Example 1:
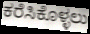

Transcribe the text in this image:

ಕರೆಸಿಕೊಳ್ಳಲು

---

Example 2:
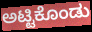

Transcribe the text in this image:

ಅಟ್ಟಿಕೊಂಡು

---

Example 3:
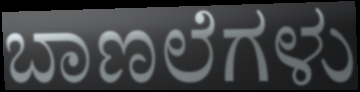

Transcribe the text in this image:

ಬಾಣಲೆಗಳು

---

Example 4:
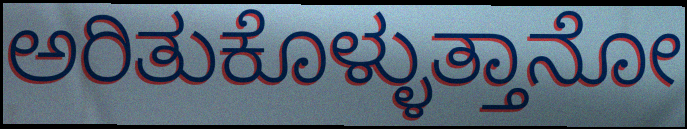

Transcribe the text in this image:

ಅರಿತುಕೊಳ್ಳುತ್ತಾನೋ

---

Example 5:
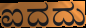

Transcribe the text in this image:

ಐದದು